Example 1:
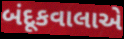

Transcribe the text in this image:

બંદૂકવાલાએ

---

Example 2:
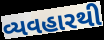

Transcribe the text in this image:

વ્યવહારથી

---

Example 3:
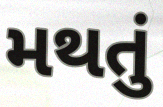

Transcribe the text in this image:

મથતું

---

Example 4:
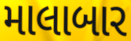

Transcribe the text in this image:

માલાબાર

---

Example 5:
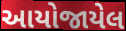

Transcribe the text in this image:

આયોજાયેલ